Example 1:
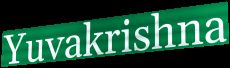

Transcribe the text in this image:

Yuvakrishna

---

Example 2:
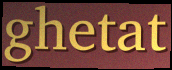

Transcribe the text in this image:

ghetat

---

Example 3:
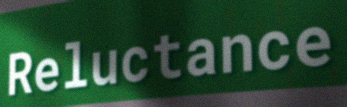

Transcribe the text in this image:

Reluctance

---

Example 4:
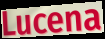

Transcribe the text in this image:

Lucena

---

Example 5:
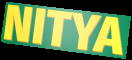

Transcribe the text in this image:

NITYA